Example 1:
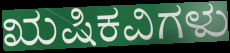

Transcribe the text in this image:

ಋಷಿಕವಿಗಳು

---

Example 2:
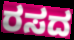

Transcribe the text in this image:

ರಸದ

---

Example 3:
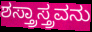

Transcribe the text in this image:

ಶಸ್ತ್ರಾಸ್ತ್ರವನು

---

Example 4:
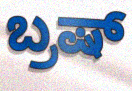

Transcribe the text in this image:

ಬ್ರಷ್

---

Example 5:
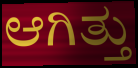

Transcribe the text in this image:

ಆಗಿತ್ತು